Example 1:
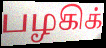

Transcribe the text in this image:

பழகிக்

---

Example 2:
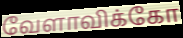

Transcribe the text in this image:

வேளாவிக்கோ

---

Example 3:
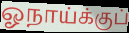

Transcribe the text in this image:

ஓநாய்க்குப்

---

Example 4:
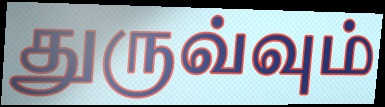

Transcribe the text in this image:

துருவ்வும்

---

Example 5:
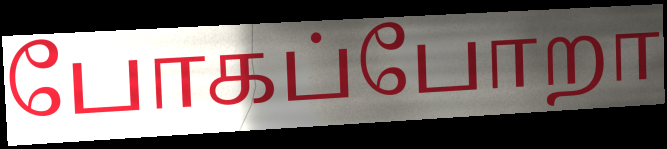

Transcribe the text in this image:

போகப்போறா